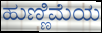
ಹುಣ್ಣಿಮೆಯ